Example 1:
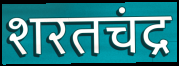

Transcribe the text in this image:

शरतचंद्र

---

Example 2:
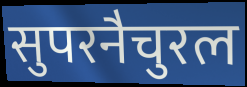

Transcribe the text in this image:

सुपरनैचुरल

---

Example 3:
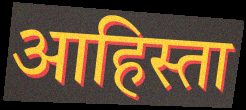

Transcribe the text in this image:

आहिस्ता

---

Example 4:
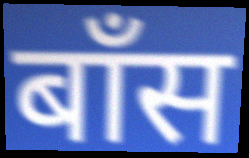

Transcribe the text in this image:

बॉंस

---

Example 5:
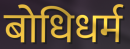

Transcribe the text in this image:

बोधिधर्म